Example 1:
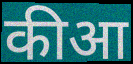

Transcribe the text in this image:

कीआ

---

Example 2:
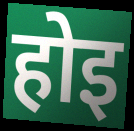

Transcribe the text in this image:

होइ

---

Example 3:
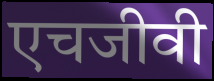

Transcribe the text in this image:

एचजीवी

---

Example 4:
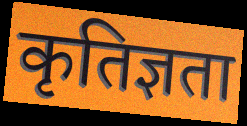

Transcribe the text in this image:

कृतिज्ञता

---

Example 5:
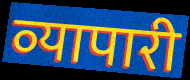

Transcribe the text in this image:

व्‍यापारी